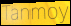
Tanmoy